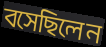
বসেছিলেন